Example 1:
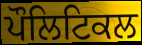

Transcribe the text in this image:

ਪੌਲਿਟਿਕਲ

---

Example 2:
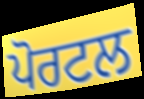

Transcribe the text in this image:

ਪੋਰਟਲ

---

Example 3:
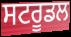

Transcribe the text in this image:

ਸਟਰੂਡਲ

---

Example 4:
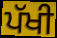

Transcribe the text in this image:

ਪੱਖੀ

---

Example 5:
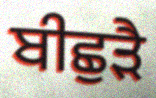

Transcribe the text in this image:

ਬੀਛੁੜੈ